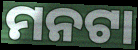
ମନଟା